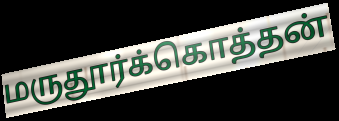
மருதூர்க்கொத்தன்